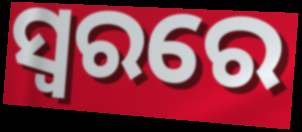
ସ୍ବରରେ